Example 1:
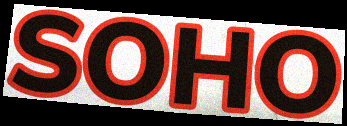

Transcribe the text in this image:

SOHO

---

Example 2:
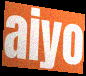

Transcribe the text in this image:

aiyo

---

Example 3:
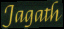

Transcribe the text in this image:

Jagath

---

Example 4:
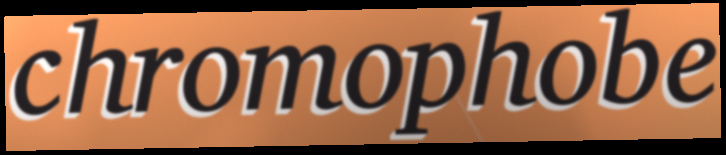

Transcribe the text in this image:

chromophobe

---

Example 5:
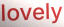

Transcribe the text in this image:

lovely